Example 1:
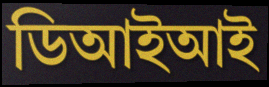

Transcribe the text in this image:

ডিআইআই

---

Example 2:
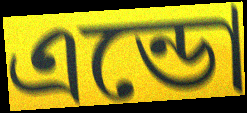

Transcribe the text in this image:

এন্ডো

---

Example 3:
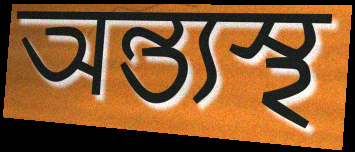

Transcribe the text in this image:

অন্ত্যস্থ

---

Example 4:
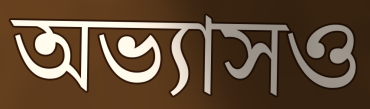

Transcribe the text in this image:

অভ্যাসও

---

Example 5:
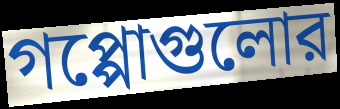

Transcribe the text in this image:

গপ্পোগুলোর